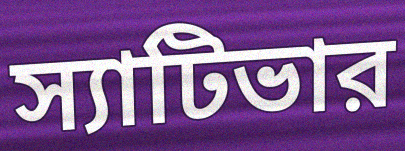
স্যাটিভার